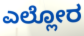
ಎಲ್ಲೋರ